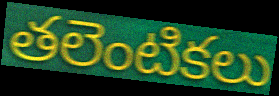
తలెంటికలు